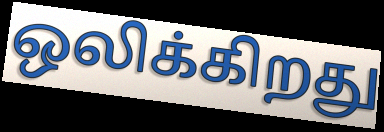
ஒலிக்கிறது